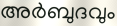
അർബുദവും